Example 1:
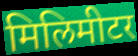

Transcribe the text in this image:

मिलिमीटर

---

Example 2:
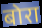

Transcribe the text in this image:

बोरा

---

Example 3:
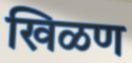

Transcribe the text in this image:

खिळण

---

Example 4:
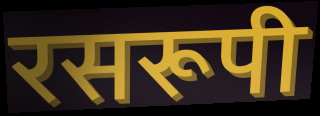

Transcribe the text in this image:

रसरूपी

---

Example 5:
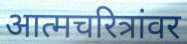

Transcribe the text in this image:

आत्मचरित्रांवर